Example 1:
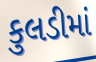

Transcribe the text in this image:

કુલડીમાં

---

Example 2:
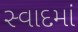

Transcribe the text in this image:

સ્વાદમાં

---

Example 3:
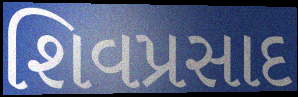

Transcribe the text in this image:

શિવપ્રસાદ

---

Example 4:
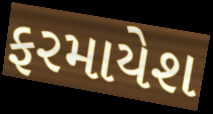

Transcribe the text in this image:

ફરમાયેશ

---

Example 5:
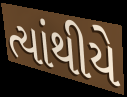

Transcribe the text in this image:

ત્યાંથીયે